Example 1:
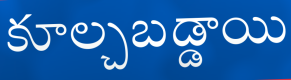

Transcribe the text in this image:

కూల్చబడ్డాయి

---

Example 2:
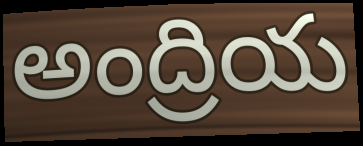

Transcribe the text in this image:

అంద్రియ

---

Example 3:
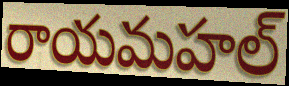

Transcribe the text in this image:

రాయమహల్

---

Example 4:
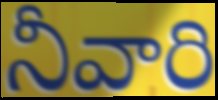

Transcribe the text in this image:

నీవారి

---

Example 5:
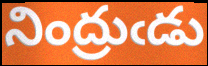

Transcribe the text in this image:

నింద్రుఁడు